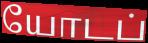
யோடப்